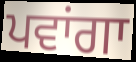
ਪਵਾਂਗਾ